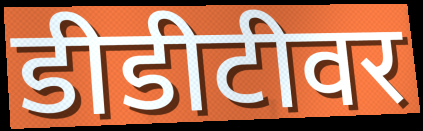
डीडीटीवर